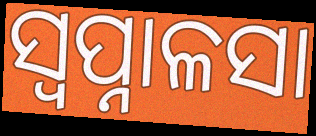
ସ୍ୱପ୍ନାଳସା